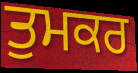
ਤੁਮਕਰ